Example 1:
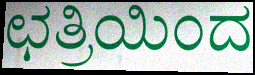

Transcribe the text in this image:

ಛತ್ರಿಯಿಂದ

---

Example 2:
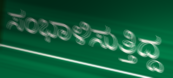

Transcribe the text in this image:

ಸಂಭಾಳಿಸುತ್ತಿದ್ದ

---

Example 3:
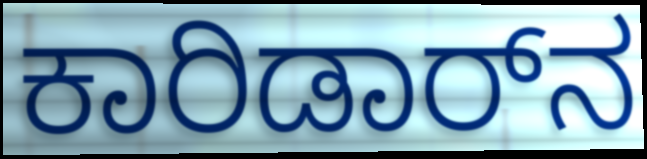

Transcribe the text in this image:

ಕಾರಿಡಾರ್‌ನ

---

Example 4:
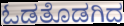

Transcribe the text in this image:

ಓಡತೊಡಗಿದ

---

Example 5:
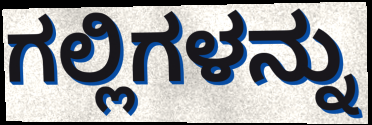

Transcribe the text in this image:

ಗಲ್ಲಿಗಳನ್ನು